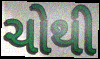
ચોથી